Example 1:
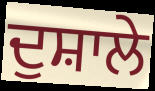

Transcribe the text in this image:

ਦੁਸ਼ਾਲੇ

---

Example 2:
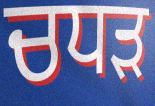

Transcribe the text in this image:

ਚਧੜ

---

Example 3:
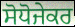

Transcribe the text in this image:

ਸੋਧੋਜੇਕਰ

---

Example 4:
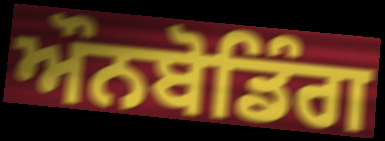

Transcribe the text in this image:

ਔਨਬੋਡਿੰਗ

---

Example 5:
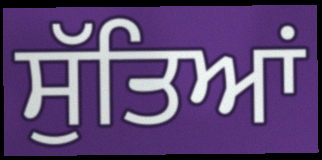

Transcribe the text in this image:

ਸੁੱਤਿਆਂ